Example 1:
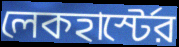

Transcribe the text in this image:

লেকহার্স্টের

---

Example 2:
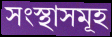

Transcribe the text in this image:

সংস্থাসমূহ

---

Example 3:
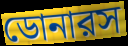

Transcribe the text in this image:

ডোনারস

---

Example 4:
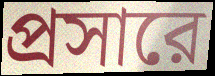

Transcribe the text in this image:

প্রসারে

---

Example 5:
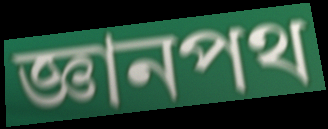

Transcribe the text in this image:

জ্ঞানপথ